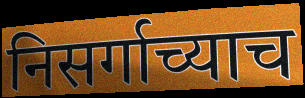
निसर्गाच्याच